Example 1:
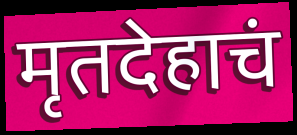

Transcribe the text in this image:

मृतदेहाचं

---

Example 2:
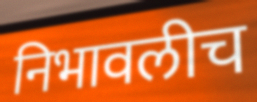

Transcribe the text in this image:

निभावलीच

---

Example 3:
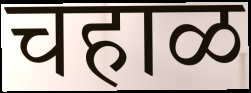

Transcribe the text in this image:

चहाळ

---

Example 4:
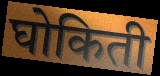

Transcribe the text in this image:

घोकिती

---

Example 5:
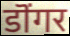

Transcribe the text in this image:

डॊंगर